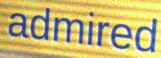
admired